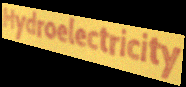
Hydroelectricity